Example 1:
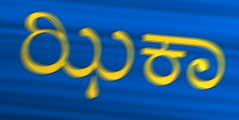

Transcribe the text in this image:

ಝಿಕಾ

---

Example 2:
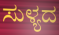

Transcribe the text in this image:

ಸುಳ್ಯದ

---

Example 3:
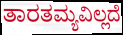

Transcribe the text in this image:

ತಾರತಮ್ಯವಿಲ್ಲದೆ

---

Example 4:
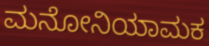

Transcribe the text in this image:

ಮನೋನಿಯಾಮಕ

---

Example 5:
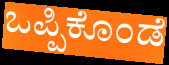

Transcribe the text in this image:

ಒಪ್ಪಿಕೊಂಡೆ